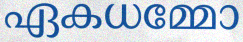
ഏകധമ്മോ